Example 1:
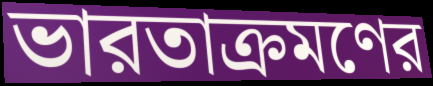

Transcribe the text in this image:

ভারতাক্রমণের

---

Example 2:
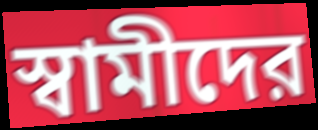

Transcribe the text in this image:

স্বামীদের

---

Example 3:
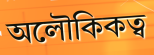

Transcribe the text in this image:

অলৌকিকত্ব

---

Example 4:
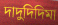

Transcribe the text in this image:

দাদুদিদিমা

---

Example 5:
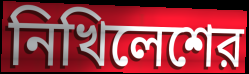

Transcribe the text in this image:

নিখিলেশের